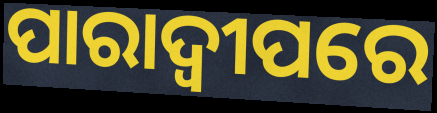
ପାରାଦ୍ବୀପରେ